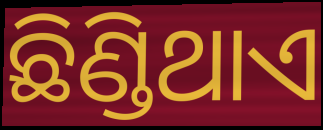
ଛିଣ୍ଡିଥାଏ